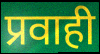
प्रवाही